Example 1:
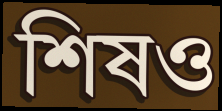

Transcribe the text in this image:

শিষও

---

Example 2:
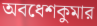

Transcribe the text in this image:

অবধেশকুমার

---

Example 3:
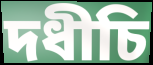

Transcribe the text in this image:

দধীচি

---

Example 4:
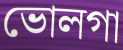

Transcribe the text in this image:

ভোলগা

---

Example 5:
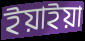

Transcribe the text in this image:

ইয়াইয়া